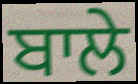
ਬਾਲੇ